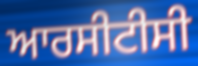
ਆਰਸੀਟੀਸੀ